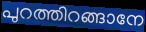
പുറത്തിറങ്ങാനേ